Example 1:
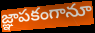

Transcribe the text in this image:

జ్ఞాపకంగానూ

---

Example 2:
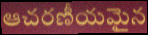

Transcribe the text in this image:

ఆచరణీయమైన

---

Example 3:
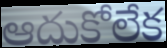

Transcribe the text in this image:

ఆదుకోలేక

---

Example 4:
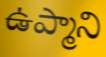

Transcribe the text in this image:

ఉప్మాని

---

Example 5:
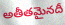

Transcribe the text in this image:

అతీతమైనదీ